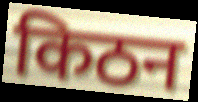
किठन